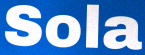
Sola